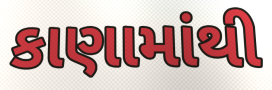
કાણામાંથી